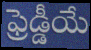
ఫ్రెడ్డీయే